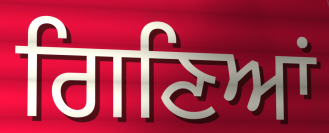
ਗਿਣਿਆਂ